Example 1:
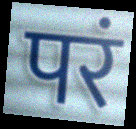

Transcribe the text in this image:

परं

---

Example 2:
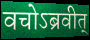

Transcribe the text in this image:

वचोऽब्रवीत्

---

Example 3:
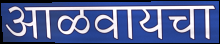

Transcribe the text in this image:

आळवायचा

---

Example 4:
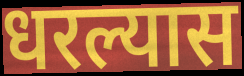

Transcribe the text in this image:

धरल्यास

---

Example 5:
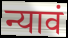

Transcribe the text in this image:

न्यावं